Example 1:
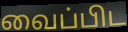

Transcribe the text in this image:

வைப்பிட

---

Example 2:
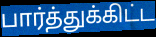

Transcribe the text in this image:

பார்த்துக்கிட்ட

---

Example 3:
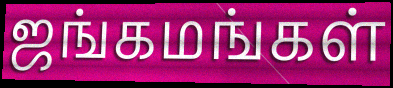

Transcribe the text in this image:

ஜங்கமங்கள்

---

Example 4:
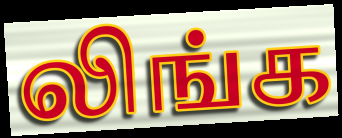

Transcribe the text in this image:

லிங்க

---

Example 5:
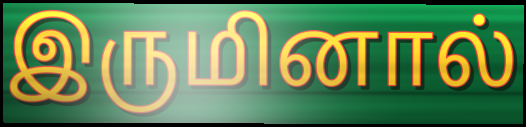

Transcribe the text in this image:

இருமினால்